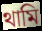
থামি